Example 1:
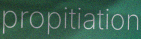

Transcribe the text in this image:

propitiation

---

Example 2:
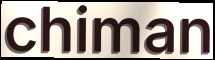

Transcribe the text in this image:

chiman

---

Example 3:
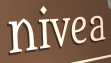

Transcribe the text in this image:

nivea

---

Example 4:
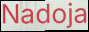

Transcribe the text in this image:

Nadoja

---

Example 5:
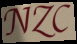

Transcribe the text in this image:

NZC